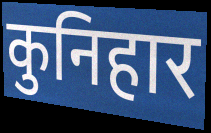
कुनिहार